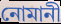
নোমানী